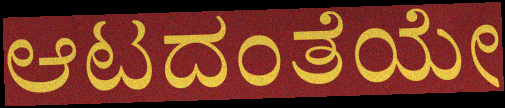
ಆಟದಂತೆಯೇ